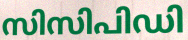
സിസിപിഡി